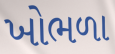
ખોભળા